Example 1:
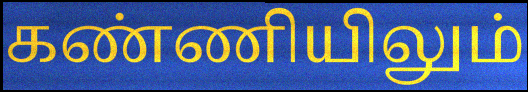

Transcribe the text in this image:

கண்ணியிலும்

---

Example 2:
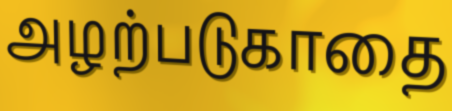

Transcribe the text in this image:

அழற்படுகாதை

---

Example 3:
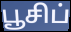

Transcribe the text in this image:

பூசிப்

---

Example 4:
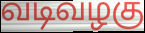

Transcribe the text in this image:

வடிவழகு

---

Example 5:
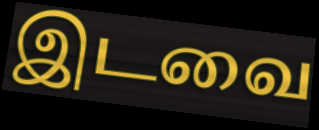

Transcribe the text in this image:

இடவை